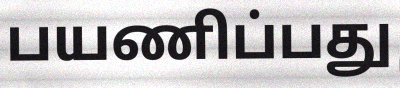
பயணிப்பது